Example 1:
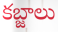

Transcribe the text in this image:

కబ్జాలు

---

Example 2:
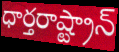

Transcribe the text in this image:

ధార్తరాష్ట్రాన్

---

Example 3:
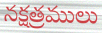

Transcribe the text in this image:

నక్షత్రములు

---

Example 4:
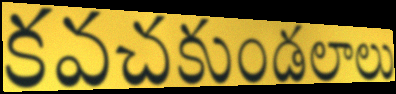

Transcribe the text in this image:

కవచకుండలాలు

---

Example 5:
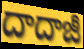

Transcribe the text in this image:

దాదాజీ